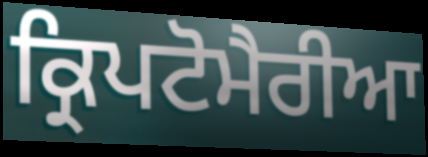
ਕ੍ਰਿਪਟੋਮੈਰੀਆ